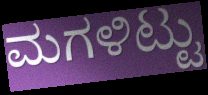
ಮಗಳಿಟ್ಟು